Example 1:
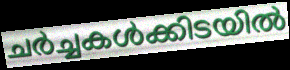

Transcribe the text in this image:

ചർച്ചകൾക്കിടയിൽ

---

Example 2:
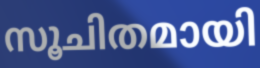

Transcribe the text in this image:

സൂചിതമായി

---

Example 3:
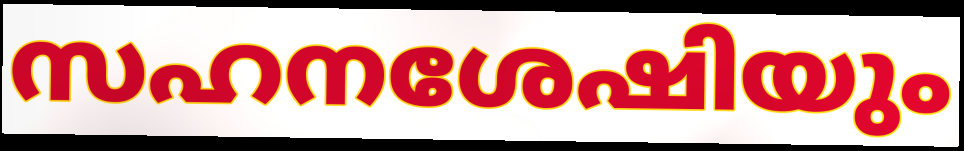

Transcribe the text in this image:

സഹനശേഷിയും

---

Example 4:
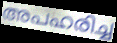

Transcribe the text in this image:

അപഹരിച്ച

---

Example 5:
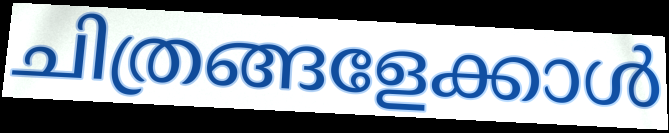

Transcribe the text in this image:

ചിത്രങ്ങളേക്കാൾ